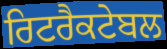
ਰਿਟਰੈਕਟੇਬਲ